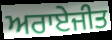
ਅਰਾਏਜੀਤ